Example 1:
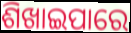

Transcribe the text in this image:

ଶିଖାଇପାରେ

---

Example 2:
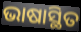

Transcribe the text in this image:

ଭାଷାସ୍ଥିତ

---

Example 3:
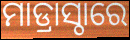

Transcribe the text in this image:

ମାଡ୍ରାସ୍ଠାରେ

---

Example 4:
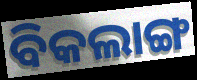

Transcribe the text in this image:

ବିକଲାଙ୍ଗ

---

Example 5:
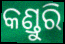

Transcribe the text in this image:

କଣ୍ଡୁରି